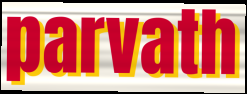
parvath